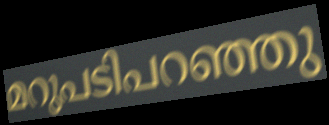
മറുപടിപറഞ്ഞു